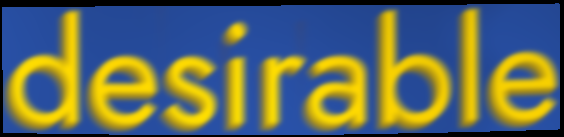
desirable